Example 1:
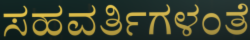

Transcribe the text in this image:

ಸಹವರ್ತಿಗಳಂತೆ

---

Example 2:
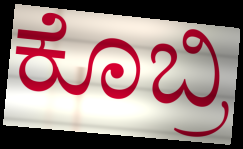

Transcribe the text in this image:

ಕೊಬ್ರಿ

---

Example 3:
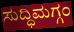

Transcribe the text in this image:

ಸುದ್ಧಿಮಗ್ಗಂ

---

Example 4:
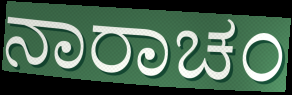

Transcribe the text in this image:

ನಾರಾಚಂ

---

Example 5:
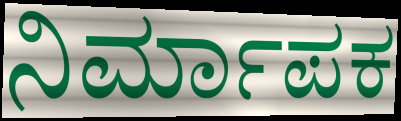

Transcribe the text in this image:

ನಿರ್ಮಾಪಕ